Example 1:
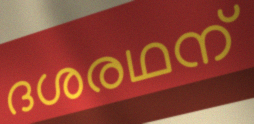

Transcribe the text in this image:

ദശരഥന്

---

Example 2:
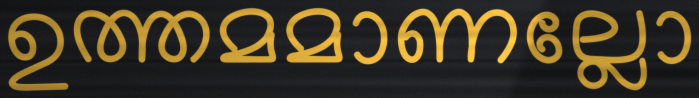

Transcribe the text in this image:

ഉത്തമമാണല്ലോ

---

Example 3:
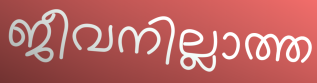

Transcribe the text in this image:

ജീവനില്ലാത്ത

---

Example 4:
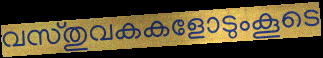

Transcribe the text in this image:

വസ്തുവകകളോടുംകൂടെ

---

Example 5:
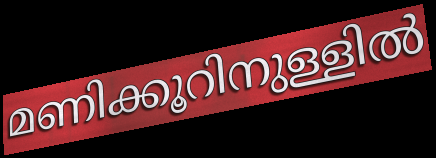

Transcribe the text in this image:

മണിക്കൂറിനുള്ളിൽ